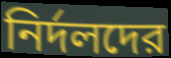
নির্দলদের